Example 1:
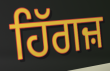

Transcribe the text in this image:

ਹਿੱਗਜ਼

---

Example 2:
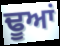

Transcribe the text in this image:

ਢੂਆਂ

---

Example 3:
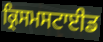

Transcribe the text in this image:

ਕ੍ਰਿਸਮਸਟਾਈਡ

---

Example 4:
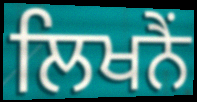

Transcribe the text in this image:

ਲਿਖਨੈਂ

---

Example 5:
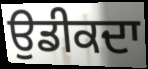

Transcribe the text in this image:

ਉਡੀਕਦਾ